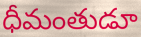
ధీమంతుడూ